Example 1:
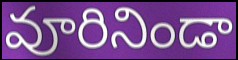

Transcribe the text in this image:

వూరినిండా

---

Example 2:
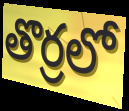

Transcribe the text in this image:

తొర్రలో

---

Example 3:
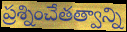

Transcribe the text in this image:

ప్రశ్నించేతత్వాన్ని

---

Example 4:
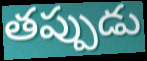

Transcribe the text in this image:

తప్పుడు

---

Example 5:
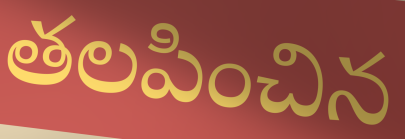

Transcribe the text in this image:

తలపించిన